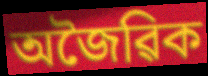
অজৈৱিক